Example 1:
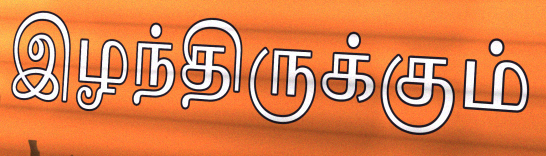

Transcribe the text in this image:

இழந்திருக்கும்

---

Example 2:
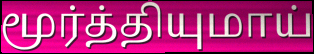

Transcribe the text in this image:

மூர்த்தியுமாய்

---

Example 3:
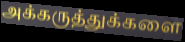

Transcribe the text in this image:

அக்கருத்துக்களை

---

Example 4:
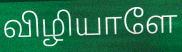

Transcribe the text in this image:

விழியாளே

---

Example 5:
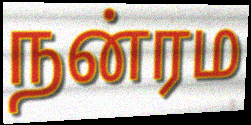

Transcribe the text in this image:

நன்ரம